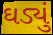
ઘડ્યું